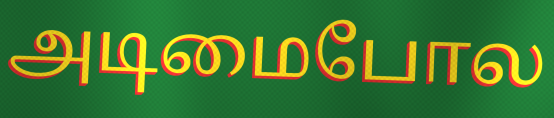
அடிமைபோல